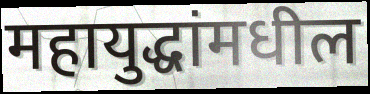
महायुद्धांमधील